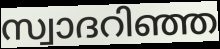
സ്വാദറിഞ്ഞ